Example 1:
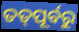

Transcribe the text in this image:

ତତ୍‌ପୂର୍ବରୁ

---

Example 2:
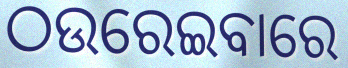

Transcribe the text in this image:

ଠଉରେଇବାରେ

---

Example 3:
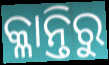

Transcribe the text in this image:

କ୍ଳାନ୍ତିରୁ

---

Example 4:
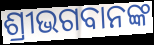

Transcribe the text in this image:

ଶ୍ରୀଭଗବାନଙ୍କ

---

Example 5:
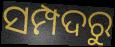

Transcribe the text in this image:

ସମ୍ପଦରୁ